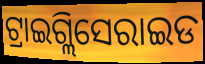
ଟ୍ରାଇଗ୍ଲିସେରାଇଡ